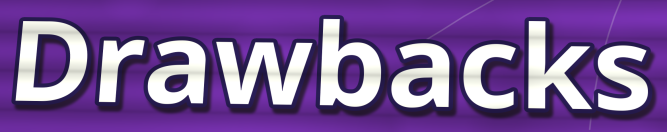
Drawbacks